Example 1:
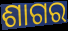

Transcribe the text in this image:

ଶାଗର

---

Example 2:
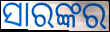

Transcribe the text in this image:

ସାରଙ୍କର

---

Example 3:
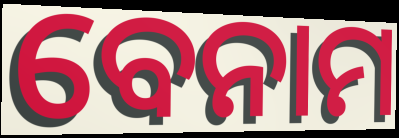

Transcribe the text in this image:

ବେନାମ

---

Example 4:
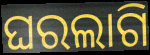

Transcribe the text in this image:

ଘରଲାଗି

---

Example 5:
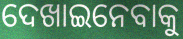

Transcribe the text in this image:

ଦେଖାଇନେବାକୁ